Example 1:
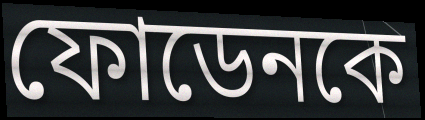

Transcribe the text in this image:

ফোডেনকে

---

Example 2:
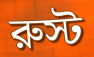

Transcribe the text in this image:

রুস্ট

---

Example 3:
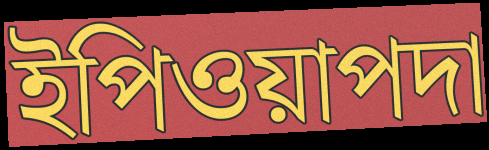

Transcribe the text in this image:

ইপিওয়াপদা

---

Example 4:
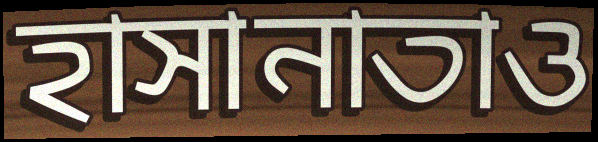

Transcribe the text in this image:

হাসানাতাও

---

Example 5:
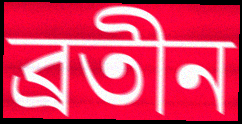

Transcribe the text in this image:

ব্রতীন